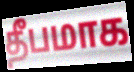
தீபமாக